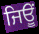
ਜਿਊਂ